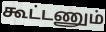
கூட்டணும்